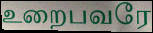
உறைபவரே